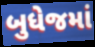
બુધેજમાં